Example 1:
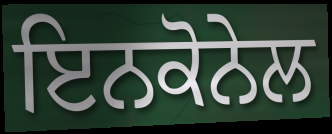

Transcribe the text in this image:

ਇਨਕੋਨੇਲ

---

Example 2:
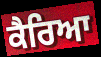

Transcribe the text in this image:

ਕੈਰਿਆ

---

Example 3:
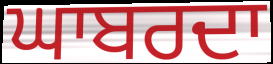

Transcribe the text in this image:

ਘਾਬਰਦਾ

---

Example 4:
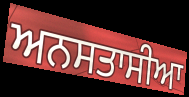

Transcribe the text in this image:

ਅਨਸਤਾਸੀਆ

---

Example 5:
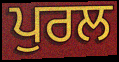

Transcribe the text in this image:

ਪੁਰਲ